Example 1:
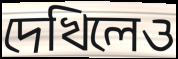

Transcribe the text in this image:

দেখিলেও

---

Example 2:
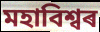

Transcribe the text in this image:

মহাবিশ্বৰ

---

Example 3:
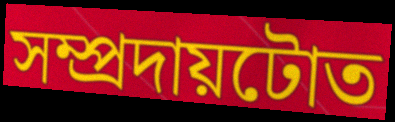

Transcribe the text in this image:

সম্প্ৰদায়টোত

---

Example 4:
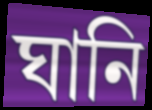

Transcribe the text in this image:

ঘানি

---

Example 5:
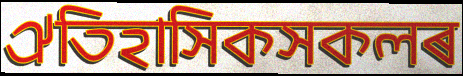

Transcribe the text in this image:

ঐতিহাসিকসকলৰ